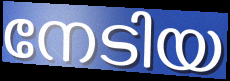
നേടിയ